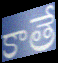
కాతే